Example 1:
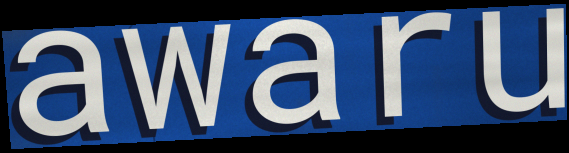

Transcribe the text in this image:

awaru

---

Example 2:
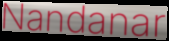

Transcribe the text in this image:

Nandanar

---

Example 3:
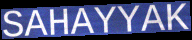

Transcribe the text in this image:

SAHAYYAK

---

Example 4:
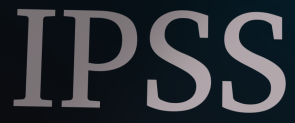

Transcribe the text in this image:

IPSS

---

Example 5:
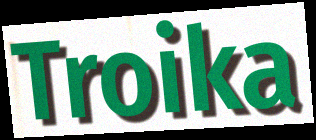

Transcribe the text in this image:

Troika